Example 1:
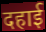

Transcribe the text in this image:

दहाई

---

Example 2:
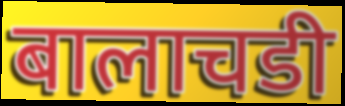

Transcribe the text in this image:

बालाचडी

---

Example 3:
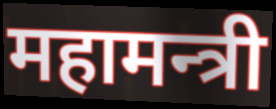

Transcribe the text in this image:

महामन्त्री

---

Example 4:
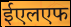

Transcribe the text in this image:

ईएलएफ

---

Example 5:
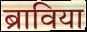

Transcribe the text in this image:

ब्राविया